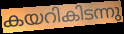
കയറികിടന്നു